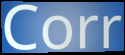
Corr